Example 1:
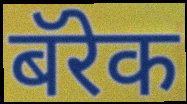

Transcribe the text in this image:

बॅरेक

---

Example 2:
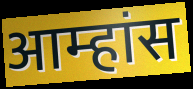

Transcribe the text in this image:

आम्हांस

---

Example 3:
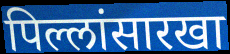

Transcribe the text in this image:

पिल्लांसारखा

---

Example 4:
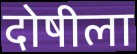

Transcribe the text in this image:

दोषीला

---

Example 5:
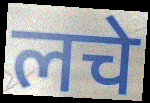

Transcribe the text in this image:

लचे